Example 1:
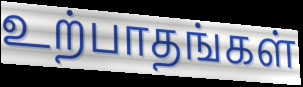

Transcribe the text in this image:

உற்பாதங்கள்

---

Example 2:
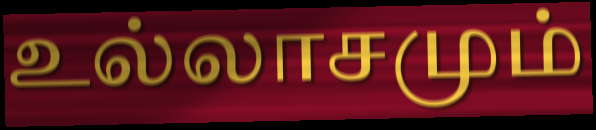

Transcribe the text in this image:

உல்லாசமும்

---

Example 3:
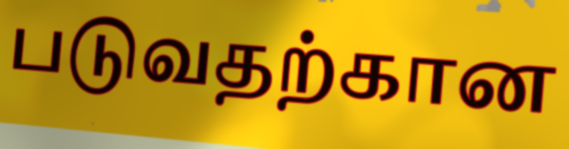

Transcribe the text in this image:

படுவதற்கான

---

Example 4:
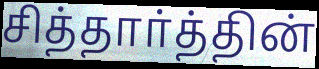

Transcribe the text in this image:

சித்தார்த்தின்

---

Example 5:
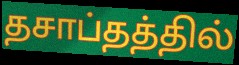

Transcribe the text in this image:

தசாப்தத்தில்